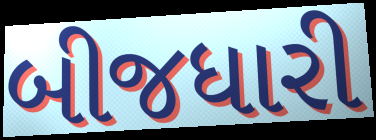
બીજધારી